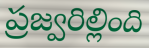
ప్రజ్వరిల్లింది